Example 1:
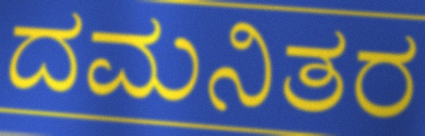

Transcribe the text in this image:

ದಮನಿತರ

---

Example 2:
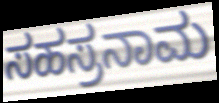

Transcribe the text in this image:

ಸಹಸ್ರನಾಮ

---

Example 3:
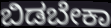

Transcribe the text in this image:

ಬಿಡಬೇಕಾ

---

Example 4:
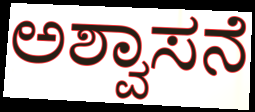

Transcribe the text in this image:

ಅಶ್ವಾಸನೆ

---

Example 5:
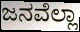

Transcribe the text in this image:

ಜನವೆಲ್ಲಾ